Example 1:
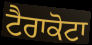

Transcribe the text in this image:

ਟੈਰਾਕੋਟਾ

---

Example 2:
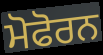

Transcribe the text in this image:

ਮੋਫੋਰਨ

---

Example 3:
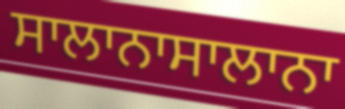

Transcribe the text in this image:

ਸਾਲਾਨਾਸਾਲਾਨਾ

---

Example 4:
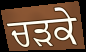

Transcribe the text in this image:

ਚੜਕੇ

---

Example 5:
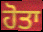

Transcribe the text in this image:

ਹੋਤਾ